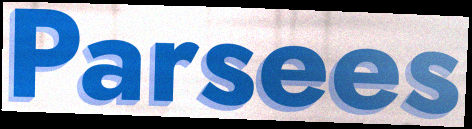
Parsees